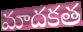
మాదకత